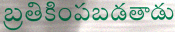
బ్రతికింపబడతాడు